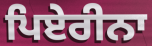
ਪਿਏਰੀਨਾ